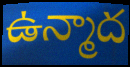
ఉన్మాద